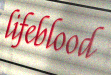
lifeblood